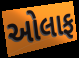
ઓલાફ